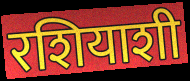
रशियाशी